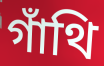
গাঁথি